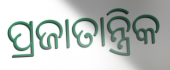
ପ୍ରଜାତାନ୍ତ୍ରିକ